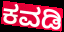
ಕವಡಿ